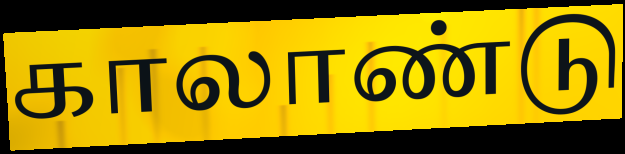
காலாண்டு